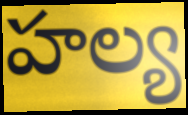
హల్య